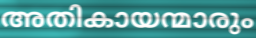
അതികായന്മാരും